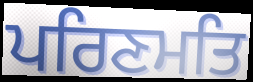
ਪਰਿਣਮਤਿ